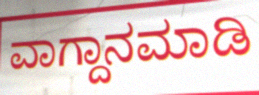
ವಾಗ್ದಾನಮಾಡಿ